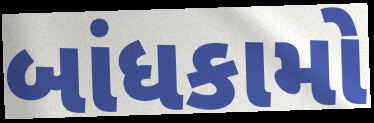
બાંધકામો